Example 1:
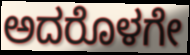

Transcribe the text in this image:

ಅದರೊಳಗೇ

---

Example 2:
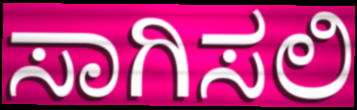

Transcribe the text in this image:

ಸಾಗಿಸಲಿ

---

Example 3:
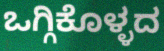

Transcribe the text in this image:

ಒಗ್ಗಿಕೊಳ್ಳದ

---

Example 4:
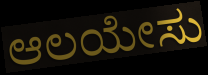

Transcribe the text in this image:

ಆಲಯೇಸು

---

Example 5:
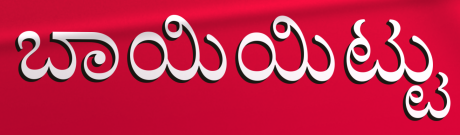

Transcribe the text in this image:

ಬಾಯಿಯಿಟ್ಟು